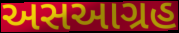
અસઆગ્રહ